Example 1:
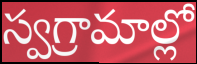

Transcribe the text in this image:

స్వగ్రామాల్లో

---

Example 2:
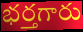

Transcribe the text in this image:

భర్తగారు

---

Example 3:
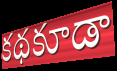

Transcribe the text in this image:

కథకూడా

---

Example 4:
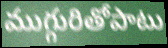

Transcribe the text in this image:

ముగ్గురితోపాటు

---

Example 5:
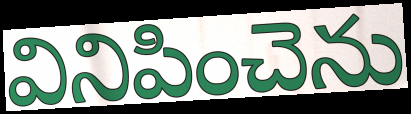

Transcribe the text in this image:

వినిపించెను